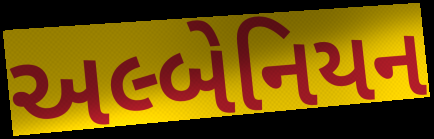
અલ્બેનિયન